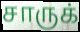
சாருக்